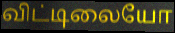
விட்டிலையோ